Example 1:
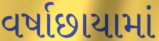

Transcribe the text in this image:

વર્ષાછાયામાં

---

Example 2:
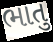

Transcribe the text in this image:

ભાતુ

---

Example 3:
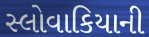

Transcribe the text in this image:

સ્લોવાકિયાની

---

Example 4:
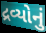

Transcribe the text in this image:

દ્રવ્યોનું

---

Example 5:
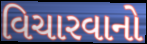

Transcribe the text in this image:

વિચારવાનો